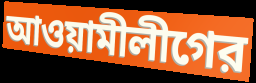
আওয়ামীলীগের